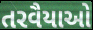
તરવૈયાઓ